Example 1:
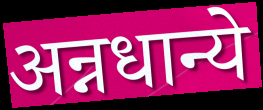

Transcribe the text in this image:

अन्नधान्ये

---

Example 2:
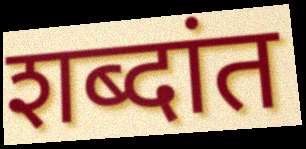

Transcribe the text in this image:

शब्दांत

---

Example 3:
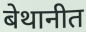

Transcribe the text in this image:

बेथानीत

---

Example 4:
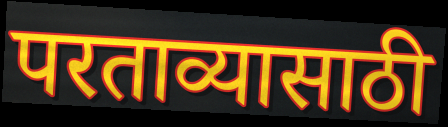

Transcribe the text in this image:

परताव्यासाठी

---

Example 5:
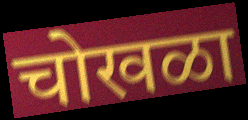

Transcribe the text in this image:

चोखळा